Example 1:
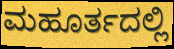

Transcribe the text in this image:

ಮಹೂರ್ತದಲ್ಲಿ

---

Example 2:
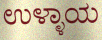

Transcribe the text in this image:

ಉಳ್ಳಾಯ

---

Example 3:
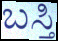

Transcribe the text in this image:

ಬಸ್ತಿ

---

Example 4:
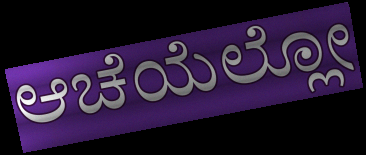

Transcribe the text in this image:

ಆಚೆಯೆಲ್ಲೋ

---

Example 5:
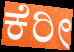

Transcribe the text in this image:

ಕೆರೀ